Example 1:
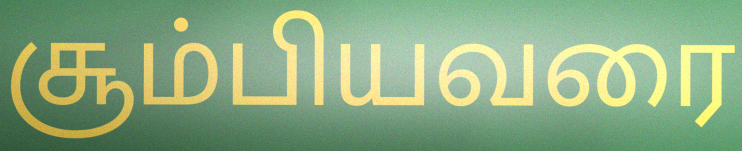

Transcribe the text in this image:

சூம்பியவரை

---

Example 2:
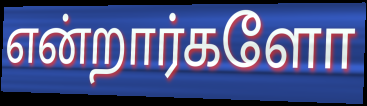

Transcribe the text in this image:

என்றார்களோ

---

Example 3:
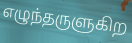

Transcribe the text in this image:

எழுந்தருளுகிற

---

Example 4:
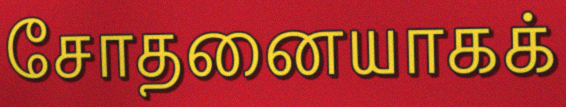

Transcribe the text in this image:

சோதனையாகக்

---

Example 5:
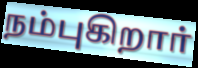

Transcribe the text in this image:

நம்புகிறார்